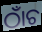
ଠାଁଚ